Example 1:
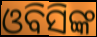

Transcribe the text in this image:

ଓବିସିଙ୍କ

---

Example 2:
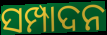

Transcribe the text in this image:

ସମ୍ପାଦନ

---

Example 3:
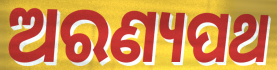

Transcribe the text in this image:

ଅରଣ୍ୟପଥ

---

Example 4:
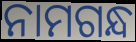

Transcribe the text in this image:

ନାମଗନ୍ଧ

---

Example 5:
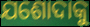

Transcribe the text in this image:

ଯଶୋଦାକୁ